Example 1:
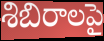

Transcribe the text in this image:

శిబిరాలపై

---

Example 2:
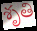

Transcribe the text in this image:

శృతి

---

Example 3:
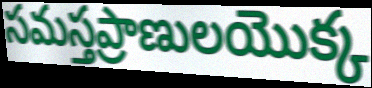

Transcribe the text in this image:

సమస్తప్రాణులయొక్క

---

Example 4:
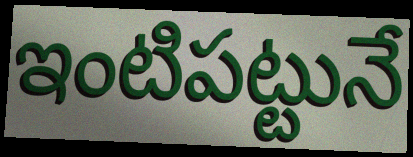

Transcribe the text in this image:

ఇంటిపట్టునే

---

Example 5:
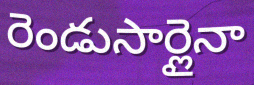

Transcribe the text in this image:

రెండుసార్లైనా